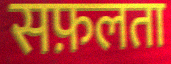
सफ़लता